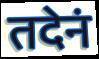
तदेनं